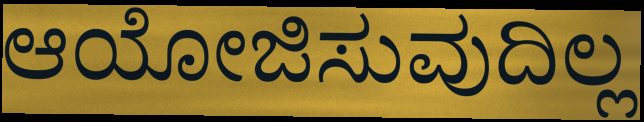
ಆಯೋಜಿಸುವುದಿಲ್ಲ